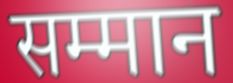
सम्मान